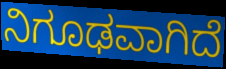
ನಿಗೂಢವಾಗಿದೆ